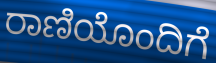
ರಾಣಿಯೊಂದಿಗೆ